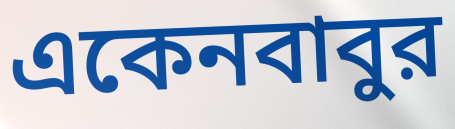
একেনবাবুর